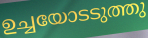
ഉച്ചയോടടുത്തു